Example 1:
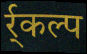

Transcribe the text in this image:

र्र्कल्प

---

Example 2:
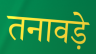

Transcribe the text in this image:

तनावड़े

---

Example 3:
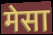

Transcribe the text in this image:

मेसा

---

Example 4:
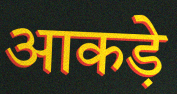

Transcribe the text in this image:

आकड़े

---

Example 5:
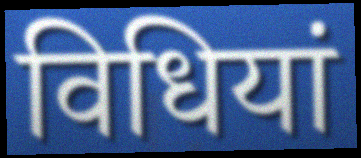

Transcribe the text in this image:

विधियां